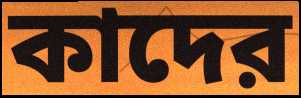
কাদের